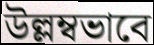
উল্লম্বভাবে